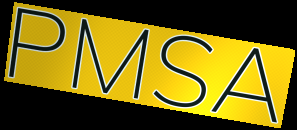
PMSA